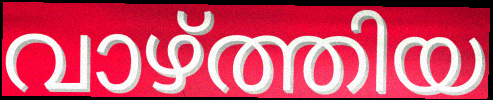
വാഴ്ത്തിയ